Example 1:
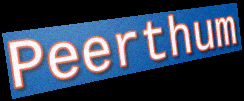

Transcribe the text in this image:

Peerthum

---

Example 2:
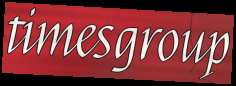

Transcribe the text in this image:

timesgroup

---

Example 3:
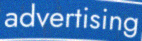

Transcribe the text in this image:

advertising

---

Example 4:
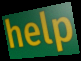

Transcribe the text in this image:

help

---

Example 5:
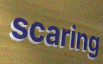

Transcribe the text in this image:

scaring